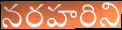
నరహరిని